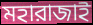
মহারাজাই